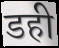
डही